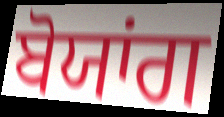
ਬੋਯਾਂਗ